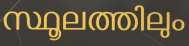
സ്ഥൂലത്തിലും